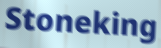
Stoneking